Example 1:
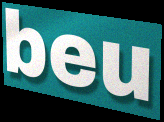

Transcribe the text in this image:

beu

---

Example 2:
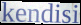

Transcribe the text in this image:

kendisi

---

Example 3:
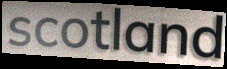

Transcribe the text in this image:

scotland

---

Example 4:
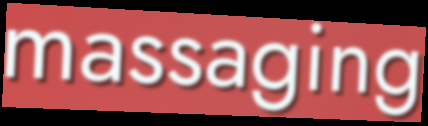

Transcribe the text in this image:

massaging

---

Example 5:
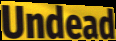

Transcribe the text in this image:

Undead